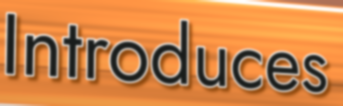
Introduces